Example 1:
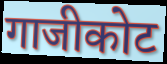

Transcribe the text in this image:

गाजीकोट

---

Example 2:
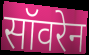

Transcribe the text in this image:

सॉवरेन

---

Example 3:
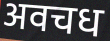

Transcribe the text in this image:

अवचध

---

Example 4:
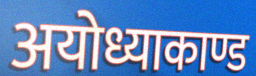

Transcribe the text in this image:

अयोध्याकाण्ड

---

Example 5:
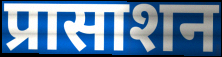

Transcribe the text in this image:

प्रासाशन